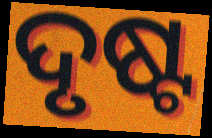
ଦୃଷ୍ଟ